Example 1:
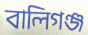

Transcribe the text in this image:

বালিগঞ্জ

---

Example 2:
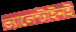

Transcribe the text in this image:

ভ্যালেন্টাইনই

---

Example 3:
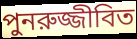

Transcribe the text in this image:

পুনরুজ্জীবিত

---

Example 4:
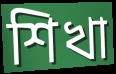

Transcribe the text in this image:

শিখা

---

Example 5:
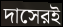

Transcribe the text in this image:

দাসেরই